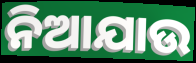
ନିଆଯାଉ